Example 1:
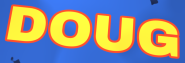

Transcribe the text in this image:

DOUG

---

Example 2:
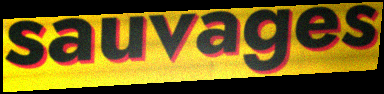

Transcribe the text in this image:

sauvages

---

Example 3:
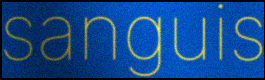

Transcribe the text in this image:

sanguis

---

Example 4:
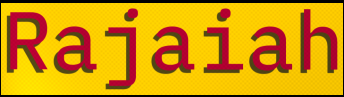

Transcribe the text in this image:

Rajaiah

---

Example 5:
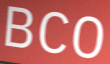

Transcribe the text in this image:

BCO